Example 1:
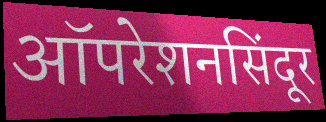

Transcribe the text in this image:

ऑपरेशनसिंदूर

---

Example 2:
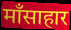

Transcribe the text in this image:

माँसाहार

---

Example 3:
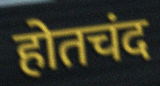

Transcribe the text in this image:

होतचंद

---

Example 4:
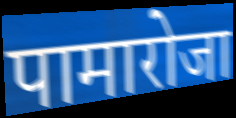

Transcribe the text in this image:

पामारोजा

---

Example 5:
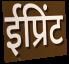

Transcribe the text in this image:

ईप्रिंट